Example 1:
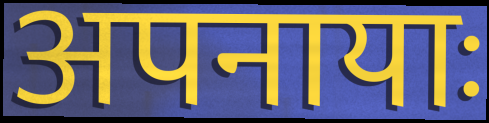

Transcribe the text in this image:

अपनायाः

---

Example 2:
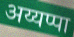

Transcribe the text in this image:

अय्यप्पा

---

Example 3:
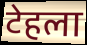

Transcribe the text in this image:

टेहला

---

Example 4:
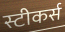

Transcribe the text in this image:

स्टीकर्स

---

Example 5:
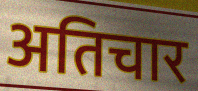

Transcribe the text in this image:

अतिचार